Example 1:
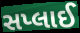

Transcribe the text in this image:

સપ્લાઈ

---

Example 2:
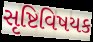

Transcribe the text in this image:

સૃષ્ટિવિષયક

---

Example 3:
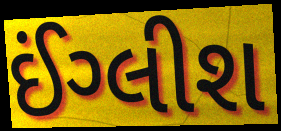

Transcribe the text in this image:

ઈંગ્લીશ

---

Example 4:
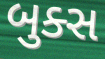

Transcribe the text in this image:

બુક્સ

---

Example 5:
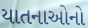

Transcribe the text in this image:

યાતનાઓનો